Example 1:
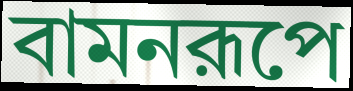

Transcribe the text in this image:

বামনরূপে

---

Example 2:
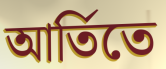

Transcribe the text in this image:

আর্তিতে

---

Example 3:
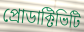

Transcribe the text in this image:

প্রোডাক্টিভিটি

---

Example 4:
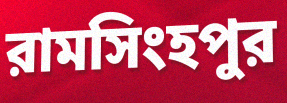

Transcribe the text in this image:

রামসিংহপুর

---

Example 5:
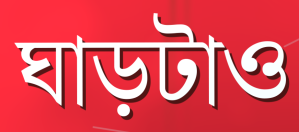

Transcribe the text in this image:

ঘাড়টাও